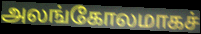
அலங்கோலமாகச்